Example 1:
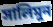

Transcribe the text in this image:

সালিমুন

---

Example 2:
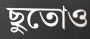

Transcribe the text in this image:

ছুতোও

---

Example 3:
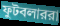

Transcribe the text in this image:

ফুটবলাররা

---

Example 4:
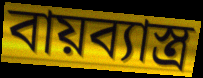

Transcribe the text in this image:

বায়ব্যাস্ত্র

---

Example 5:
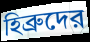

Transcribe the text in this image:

হিব্রুদের